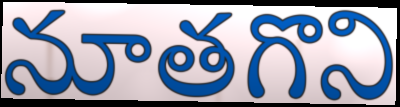
నూతగొని